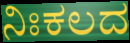
ನಿಃಕಲದ